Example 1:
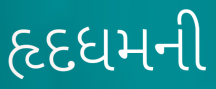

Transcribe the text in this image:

હૃદધમની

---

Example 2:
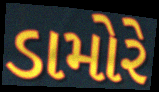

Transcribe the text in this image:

ડામોરે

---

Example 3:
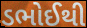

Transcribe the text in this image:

ડભોઈથી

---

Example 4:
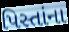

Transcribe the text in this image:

પિસ્તાંના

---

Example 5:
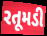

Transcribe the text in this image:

રતૂમડી